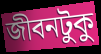
জীবনটুকু